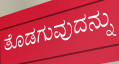
ತೊಡಗುವುದನ್ನು